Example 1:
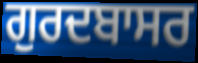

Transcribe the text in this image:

ਗੁਰਦਬਾਸਰ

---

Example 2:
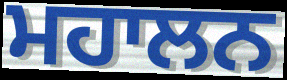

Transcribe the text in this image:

ਮਹਾਲਨ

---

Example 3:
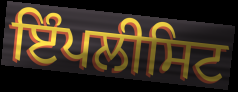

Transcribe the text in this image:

ਇੰਪਲੀਸਿਟ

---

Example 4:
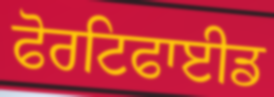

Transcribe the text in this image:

ਫੋਰਟਿਫਾਈਡ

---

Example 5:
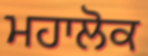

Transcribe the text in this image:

ਮਹਾਲੋਕ